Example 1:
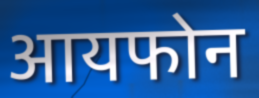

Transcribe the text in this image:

आयफोन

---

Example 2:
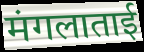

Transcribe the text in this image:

मंगलाताई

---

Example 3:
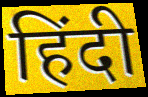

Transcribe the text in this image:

हिंदी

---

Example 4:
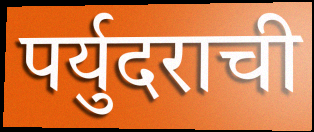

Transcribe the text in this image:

पर्युदराची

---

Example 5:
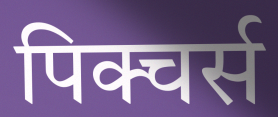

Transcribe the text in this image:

पिक्चर्स